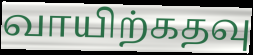
வாயிற்கதவு